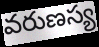
వరుణస్య